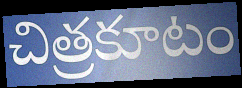
చిత్రకూటం